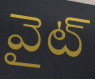
వైట్